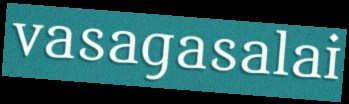
vasagasalai